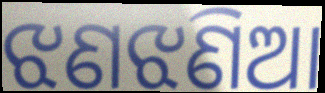
ଝଣଝଣିଆ